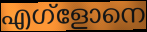
എഗ്ളോനെ